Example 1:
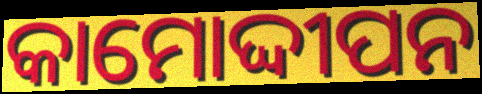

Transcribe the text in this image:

କାମୋଦ୍ଦୀପନ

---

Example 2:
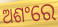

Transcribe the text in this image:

ଅଶଂରେ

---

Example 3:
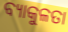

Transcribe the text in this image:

ବ୍ୟାକୁଳତା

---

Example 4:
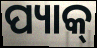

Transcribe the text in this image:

ପ୍ୟାକ୍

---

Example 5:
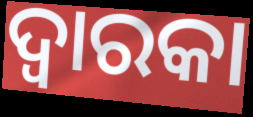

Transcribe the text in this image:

ଦ୍ୱାରକା